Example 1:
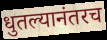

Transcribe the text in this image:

धुतल्यानंतरच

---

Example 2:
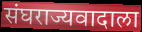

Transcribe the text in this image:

संघराज्यवादाला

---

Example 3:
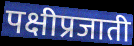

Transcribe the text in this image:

पक्षीप्रजाती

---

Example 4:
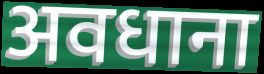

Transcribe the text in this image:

अवधाना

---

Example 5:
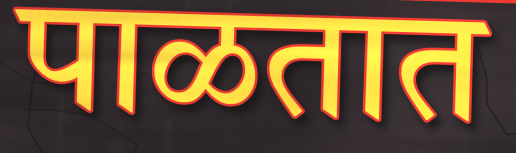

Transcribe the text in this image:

पाळतात